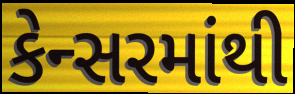
કેન્સરમાંથી